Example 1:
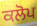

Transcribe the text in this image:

ਕਲੋਪ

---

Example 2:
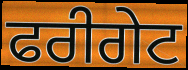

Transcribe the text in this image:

ਫਰੀਗੇਟ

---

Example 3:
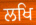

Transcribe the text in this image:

ਲਖਿ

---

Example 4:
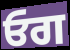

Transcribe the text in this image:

ਓਗ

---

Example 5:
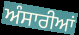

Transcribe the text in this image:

ਅੰਸਾਰੀਆਂ